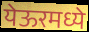
येऊरमध्ये